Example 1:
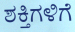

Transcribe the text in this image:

ಶಕ್ತಿಗಳಿಗೆ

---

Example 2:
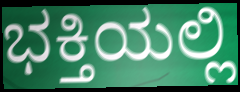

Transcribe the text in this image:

ಭಕ್ತಿಯಲ್ಲಿ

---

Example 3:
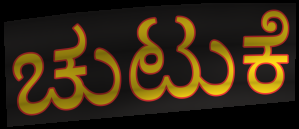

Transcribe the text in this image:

ಚುಟುಕೆ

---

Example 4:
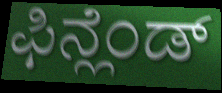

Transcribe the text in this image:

ಫಿನ್ಲೆಂಡ್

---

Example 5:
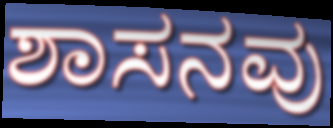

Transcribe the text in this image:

ಶಾಸನವು